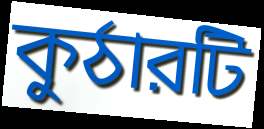
কুঠারটি